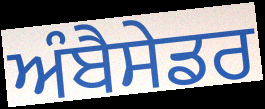
ਅੰਬੈਸੇਡਰ